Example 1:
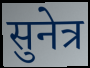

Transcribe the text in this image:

सुनेत्र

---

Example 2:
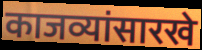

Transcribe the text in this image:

काजव्यांसारखे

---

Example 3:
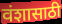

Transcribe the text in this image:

वंशासाठी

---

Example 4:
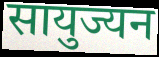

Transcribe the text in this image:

सायुज्यन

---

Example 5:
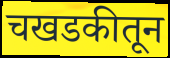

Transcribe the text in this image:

चखडकीतून